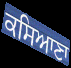
ਕਸਿਆਣਾ